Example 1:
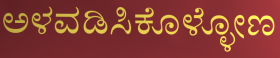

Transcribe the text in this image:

ಅಳವಡಿಸಿಕೊಳ್ಳೋಣ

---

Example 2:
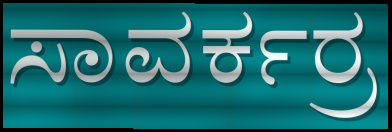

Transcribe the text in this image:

ಸಾವರ್ಕರ್ರ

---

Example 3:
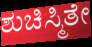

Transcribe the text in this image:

ಶುಚಿಸ್ಮಿತೇ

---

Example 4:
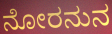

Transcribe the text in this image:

ನೋರನುನ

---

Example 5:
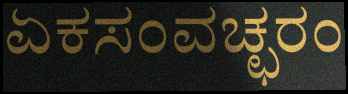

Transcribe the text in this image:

ಏಕಸಂವಚ್ಛರಂ